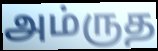
அம்ருத